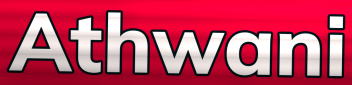
Athwani